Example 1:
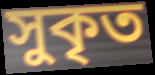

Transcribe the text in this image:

সুকৃত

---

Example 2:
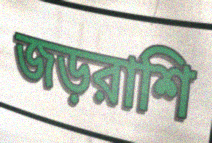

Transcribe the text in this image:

জড়রাশি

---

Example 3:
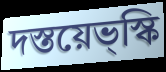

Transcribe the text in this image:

দস্তয়েভ্স্কি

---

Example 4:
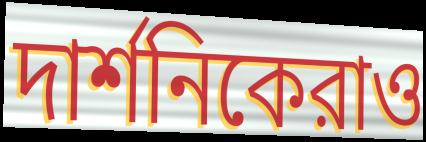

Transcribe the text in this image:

দার্শনিকেরাও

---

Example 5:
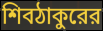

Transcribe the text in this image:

শিবঠাকুরের